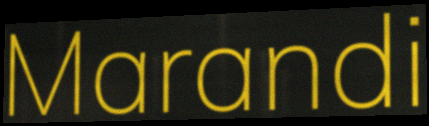
Marandi